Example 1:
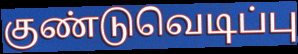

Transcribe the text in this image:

குண்டுவெடிப்பு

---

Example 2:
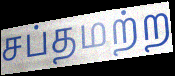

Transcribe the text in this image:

சப்தமற்ற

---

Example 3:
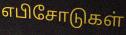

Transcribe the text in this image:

எபிசோடுகள்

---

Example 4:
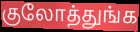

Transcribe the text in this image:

குலோத்துங்க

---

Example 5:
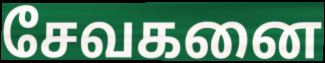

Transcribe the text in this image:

சேவகனை